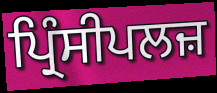
ਪ੍ਰਿੰਸੀਪਲਜ਼